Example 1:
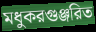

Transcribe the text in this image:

মধুকরগুঞ্জরিত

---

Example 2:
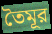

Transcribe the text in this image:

তৈমূর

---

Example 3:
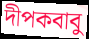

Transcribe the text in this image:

দীপকবাবু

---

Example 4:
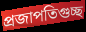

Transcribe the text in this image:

প্রজাপতিগুচ্ছ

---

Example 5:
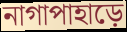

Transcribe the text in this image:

নাগাপাহাড়ে